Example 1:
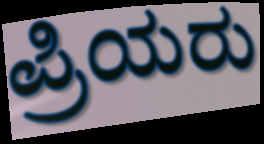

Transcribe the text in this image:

ಪ್ರಿಯರು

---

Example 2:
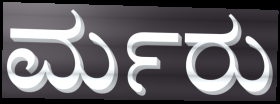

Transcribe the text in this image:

ರ್ಮರು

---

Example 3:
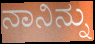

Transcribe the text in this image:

ನಾನಿನ್ನು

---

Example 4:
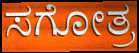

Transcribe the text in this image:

ಸಗೋತ್ರ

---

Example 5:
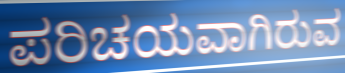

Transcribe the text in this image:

ಪರಿಚಯವಾಗಿರುವ